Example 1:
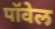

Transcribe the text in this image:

पॉवेल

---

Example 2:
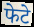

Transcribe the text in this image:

फेटे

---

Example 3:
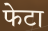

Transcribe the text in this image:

फेटा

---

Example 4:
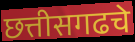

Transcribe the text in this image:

छत्तीसगढचे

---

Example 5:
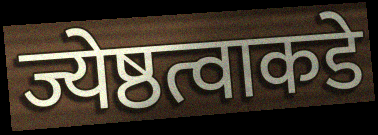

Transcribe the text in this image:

ज्येष्ठत्वाकडे